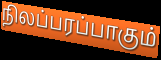
நிலப்பரப்பாகும்